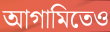
আগামিতেও